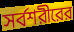
সর্বশরীরের